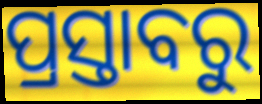
ପ୍ରସ୍ତାବରୁ